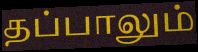
தப்பாலும்